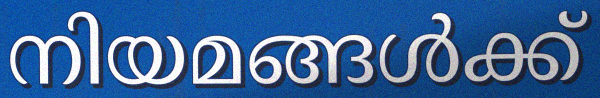
നിയമങ്ങൾക്ക്